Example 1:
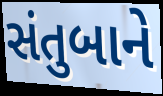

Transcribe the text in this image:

સંતુબાને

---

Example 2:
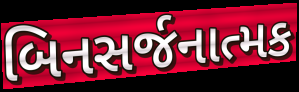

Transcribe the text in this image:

બિનસર્જનાત્મક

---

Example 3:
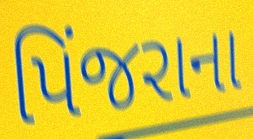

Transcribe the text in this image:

પિંજરાના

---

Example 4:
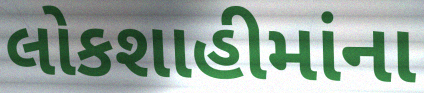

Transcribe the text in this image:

લોકશાહીમાંના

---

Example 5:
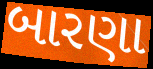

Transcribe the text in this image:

બારણા